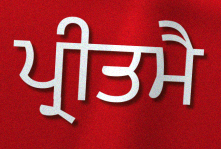
ਪ੍ਰੀਤਮੈ